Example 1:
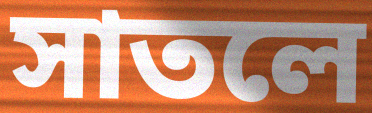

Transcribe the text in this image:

সাতলে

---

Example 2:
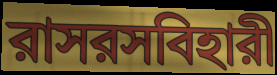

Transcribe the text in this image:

রাসরসবিহারী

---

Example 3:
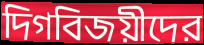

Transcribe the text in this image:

দিগবিজয়ীদের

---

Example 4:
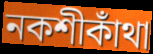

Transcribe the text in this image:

নকশীকাঁথা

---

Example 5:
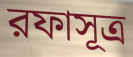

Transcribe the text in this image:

রফাসূত্র